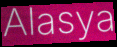
Alasya